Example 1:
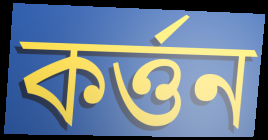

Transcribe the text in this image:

কর্ত্তন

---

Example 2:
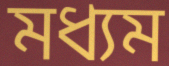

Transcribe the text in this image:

মধ্যম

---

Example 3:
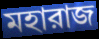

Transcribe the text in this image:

মহারাজ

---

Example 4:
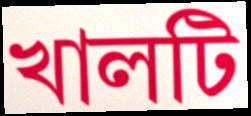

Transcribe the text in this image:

খালটি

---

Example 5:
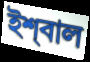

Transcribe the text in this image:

ইশ্‌বাল